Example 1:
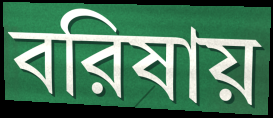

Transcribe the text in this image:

বরিষায়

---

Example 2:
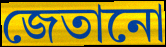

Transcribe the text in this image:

জেতানো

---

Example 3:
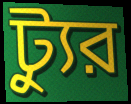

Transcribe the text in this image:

ট্যুর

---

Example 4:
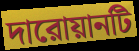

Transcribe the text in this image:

দারোয়ানটি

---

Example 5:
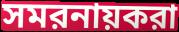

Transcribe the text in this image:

সমরনায়করা